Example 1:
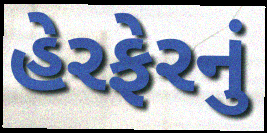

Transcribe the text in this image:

હેરફેરનું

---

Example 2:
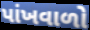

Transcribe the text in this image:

પાંખવાળો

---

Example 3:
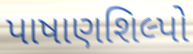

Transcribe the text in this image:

પાષાણશિલ્પો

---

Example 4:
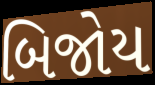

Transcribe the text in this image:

બિજોય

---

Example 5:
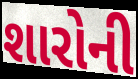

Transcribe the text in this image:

શારોની